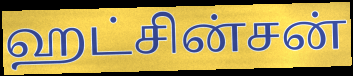
ஹட்சின்சன்